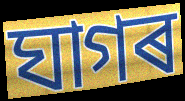
ঘাগৰ